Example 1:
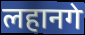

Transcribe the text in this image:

लहानगे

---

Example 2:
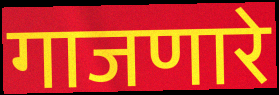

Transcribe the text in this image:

गाजणारे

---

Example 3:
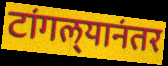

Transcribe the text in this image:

टांगल्यानंतर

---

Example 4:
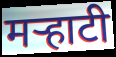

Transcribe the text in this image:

मर्‍हाटी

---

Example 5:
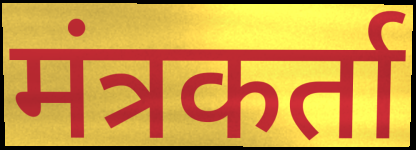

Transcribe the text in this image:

मंत्रकर्ता